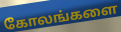
கோலங்களை